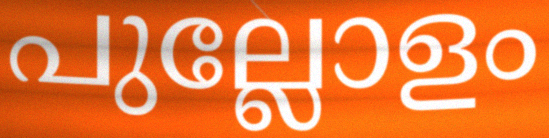
പുല്ലോളം